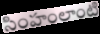
సింహంలాంటి